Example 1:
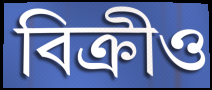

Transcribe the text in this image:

বিক্ৰীও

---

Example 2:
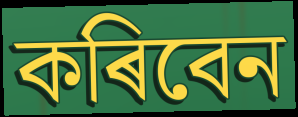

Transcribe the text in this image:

কৰিবেন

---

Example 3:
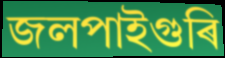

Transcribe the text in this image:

জলপাইগুৰি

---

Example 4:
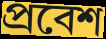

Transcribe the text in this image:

প্ৰবেশ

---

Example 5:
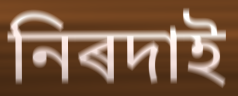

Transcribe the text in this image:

নিৰদাই